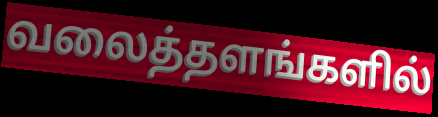
வலைத்தளங்களில்